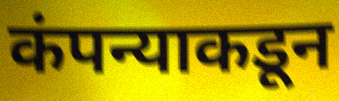
कंपन्याकडून